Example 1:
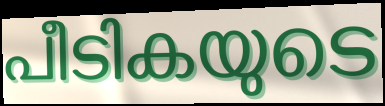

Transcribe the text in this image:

പീടികയുടെ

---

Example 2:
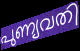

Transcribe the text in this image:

പുണ്യവതി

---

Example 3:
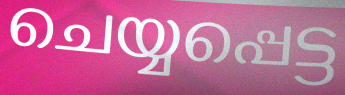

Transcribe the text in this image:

ചെയ്യപ്പെട്ട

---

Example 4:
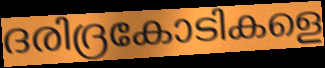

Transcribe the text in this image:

ദരിദ്രകോടികളെ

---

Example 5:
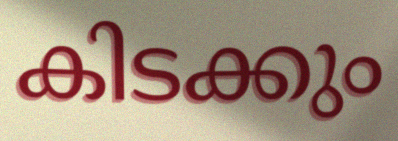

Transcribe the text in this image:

കിടക്കും